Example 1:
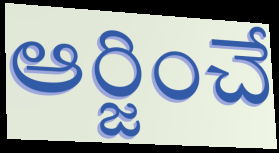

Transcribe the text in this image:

ఆర్జించే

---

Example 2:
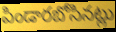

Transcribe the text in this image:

పిండారబోసినట్లు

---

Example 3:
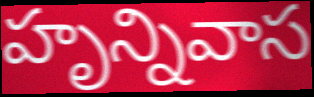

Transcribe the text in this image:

హృన్నివాస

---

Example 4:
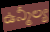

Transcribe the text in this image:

ఉన్మీల్య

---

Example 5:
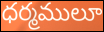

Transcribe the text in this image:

ధర్మములూ